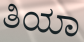
ತಿಯಾ